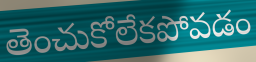
తెంచుకోలేకపోవడం